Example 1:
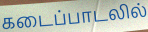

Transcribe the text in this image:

கடைப்பாடலில்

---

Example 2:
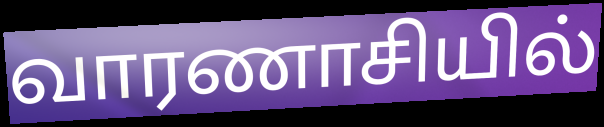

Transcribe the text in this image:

வாரணாசியில்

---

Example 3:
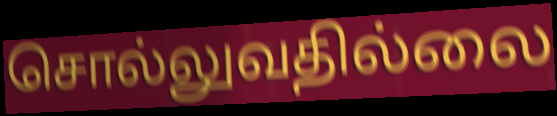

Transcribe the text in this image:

சொல்லுவதில்லை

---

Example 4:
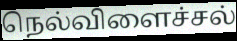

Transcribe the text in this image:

நெல்விளைச்சல்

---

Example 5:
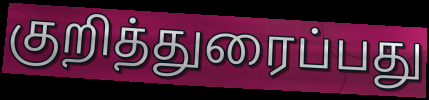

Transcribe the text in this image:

குறித்துரைப்பது